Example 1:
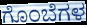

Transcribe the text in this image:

ಗೊಂಬೆಗಳ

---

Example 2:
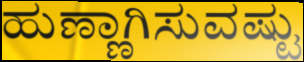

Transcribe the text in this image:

ಹುಣ್ಣಾಗಿಸುವಷ್ಟು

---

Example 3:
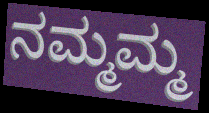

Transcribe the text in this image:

ನಮ್ಮಮ್ಮ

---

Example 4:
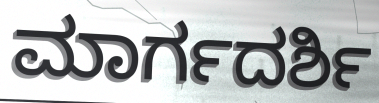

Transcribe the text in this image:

ಮಾರ್ಗದರ್ಶಿ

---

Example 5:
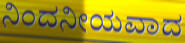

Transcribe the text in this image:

ನಿಂದನೀಯವಾದ